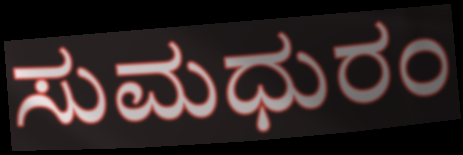
ಸುಮಧುರಂ